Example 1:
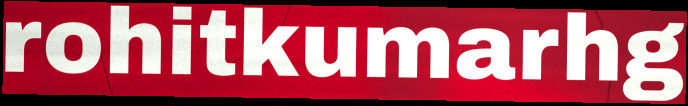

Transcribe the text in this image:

rohitkumarhg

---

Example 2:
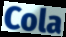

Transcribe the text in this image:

Cola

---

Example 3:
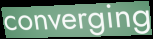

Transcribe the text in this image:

converging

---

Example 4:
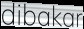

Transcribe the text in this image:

dibakar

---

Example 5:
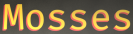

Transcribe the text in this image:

Mosses